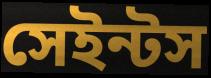
সেইন্টস